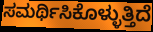
ಸಮರ್ಥಿಸಿಕೊಳ್ಳುತ್ತಿದೆ